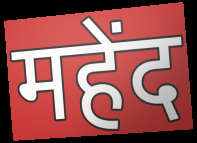
महेंद